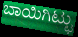
ಬಾಯಿಗಿಟ್ಟು